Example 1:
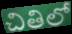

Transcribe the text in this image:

చితిలో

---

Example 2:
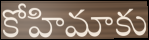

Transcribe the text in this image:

కోహిమాకు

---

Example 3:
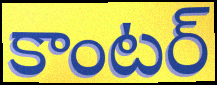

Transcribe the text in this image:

కాంటర్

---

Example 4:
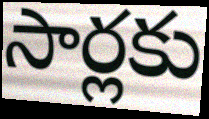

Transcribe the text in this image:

సార్లకు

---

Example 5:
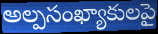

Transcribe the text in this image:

అల్పసంఖ్యాకులపై